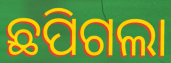
ଛପିଗଲା